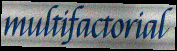
multifactorial